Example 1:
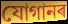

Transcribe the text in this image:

যোগানৰ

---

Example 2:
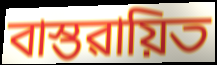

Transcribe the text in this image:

বাস্তৱায়িত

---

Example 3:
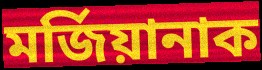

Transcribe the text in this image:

মৰ্জিয়ানাক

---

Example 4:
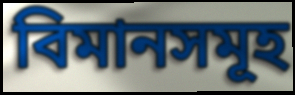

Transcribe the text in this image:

বিমানসমূহ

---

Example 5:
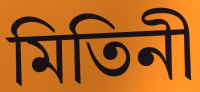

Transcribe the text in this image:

মিতিনী